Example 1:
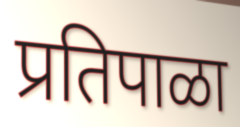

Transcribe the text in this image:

प्रतिपाळा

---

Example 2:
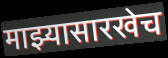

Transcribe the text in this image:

माझ्यासारखेच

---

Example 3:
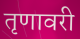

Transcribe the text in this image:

तृणावरी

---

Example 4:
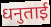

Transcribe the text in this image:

धनुताई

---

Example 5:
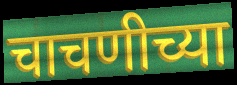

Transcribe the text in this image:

चाचणीच्या